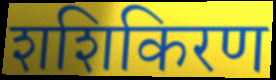
शशिकिरण